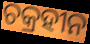
ଚକ୍ରହୀନ